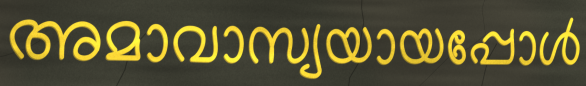
അമാവാസ്യയായപ്പോൾ